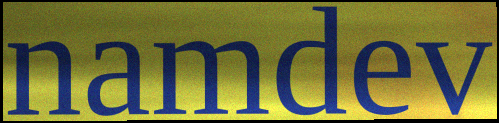
namdev